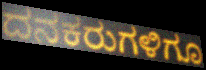
ದನಕರುಗಳಿಗೂ